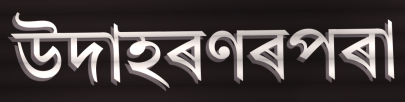
উদাহৰণৰপৰা